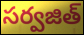
సర్వజిత్